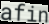
afin